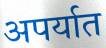
अपर्यात